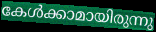
കേൾക്കാമായിരുന്നു